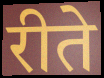
रीते